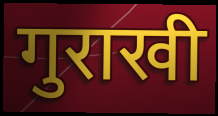
गुराखी